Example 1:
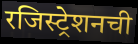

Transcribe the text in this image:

रजिस्ट्रेशनची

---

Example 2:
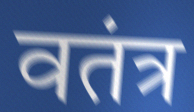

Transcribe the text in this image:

वतंत्र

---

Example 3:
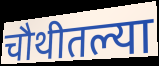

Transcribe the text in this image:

चौथीतल्या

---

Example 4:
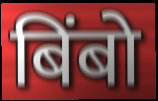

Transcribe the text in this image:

बिंबो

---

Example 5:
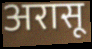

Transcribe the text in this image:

अरासू